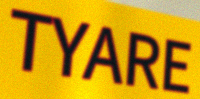
TYARE